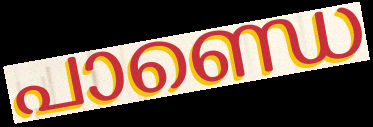
പാണ്ഡെ